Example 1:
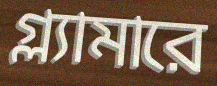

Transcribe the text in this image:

গ্ল্যামারে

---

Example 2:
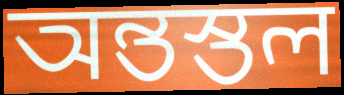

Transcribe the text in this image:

অন্তস্তল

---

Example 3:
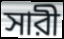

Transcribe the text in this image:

সারী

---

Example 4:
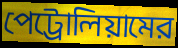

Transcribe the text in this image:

পেট্রোলিয়ামের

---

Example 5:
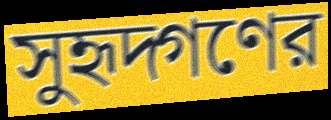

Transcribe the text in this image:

সুহৃদ্গণের